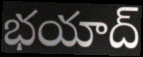
భయాద్